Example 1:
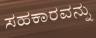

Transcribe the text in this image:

ಸಹಕಾರವನ್ನು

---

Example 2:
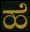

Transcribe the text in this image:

ಹೆ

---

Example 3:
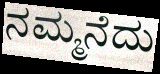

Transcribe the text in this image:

ನಮ್ಮನೆದು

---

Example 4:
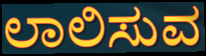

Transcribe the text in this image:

ಲಾಲಿಸುವ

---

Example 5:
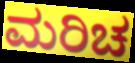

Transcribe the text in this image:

ಮರಿಚ